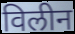
विलीन